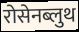
रोसेनब्लुथ